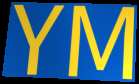
YM